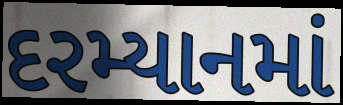
દરમ્યાનમાં